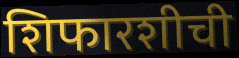
शिफारशीची